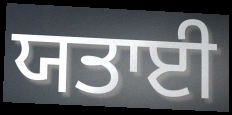
ਯਤਾਈ